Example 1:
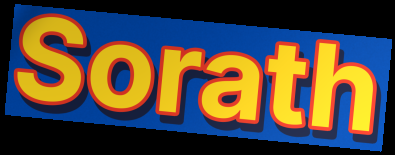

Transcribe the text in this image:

Sorath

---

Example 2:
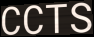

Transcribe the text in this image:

CCTS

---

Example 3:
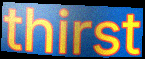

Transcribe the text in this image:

thirst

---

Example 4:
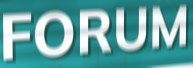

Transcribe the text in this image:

FORUM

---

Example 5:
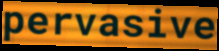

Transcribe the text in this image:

pervasive